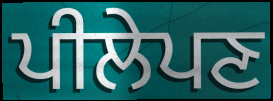
ਪੀਲੇਪਣ